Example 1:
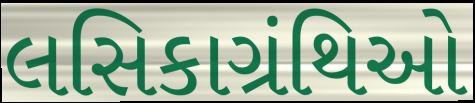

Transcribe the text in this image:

લસિકાગ્રંથિઓ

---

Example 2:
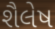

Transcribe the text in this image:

શૈલેષ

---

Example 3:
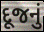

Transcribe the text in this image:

દૂજનું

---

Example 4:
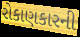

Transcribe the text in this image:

રોકાણકારની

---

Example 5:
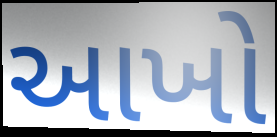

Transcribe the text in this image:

આખો